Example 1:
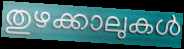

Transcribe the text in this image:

തുഴക്കാലുകൾ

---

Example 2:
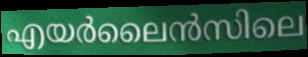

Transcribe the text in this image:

എയർലൈൻസിലെ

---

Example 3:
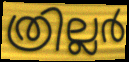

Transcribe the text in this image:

ത്രില്ലർ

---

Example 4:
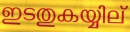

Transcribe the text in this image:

ഇടതുകയ്യില്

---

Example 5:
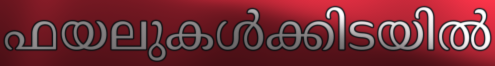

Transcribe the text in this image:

ഫയലുകൾക്കിടയിൽ